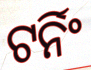
ଟର୍ନିଂ